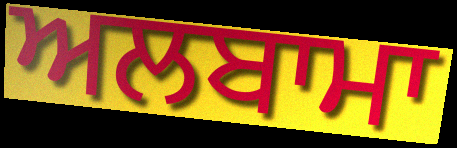
ਅਲਬਾਮਾ